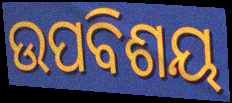
ଉପବିଶୟ